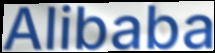
Alibaba